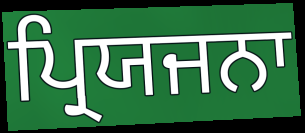
ਪ੍ਰਿਯਜਨਾ